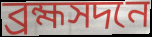
ব্রহ্মসদনে